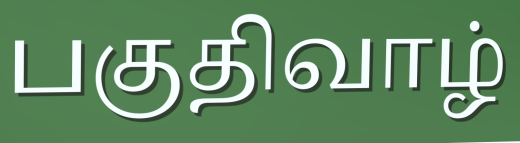
பகுதிவாழ்